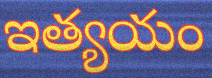
ఇత్యయం